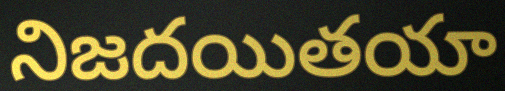
నిజదయితయా